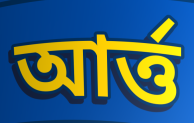
আৰ্ত্ত